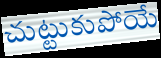
చుట్టుకుపోయే